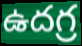
ఉదగ్ర